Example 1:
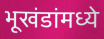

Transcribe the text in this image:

भूखंडांमध्ये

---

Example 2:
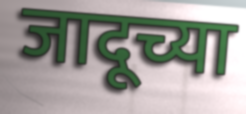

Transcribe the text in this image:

जादूच्या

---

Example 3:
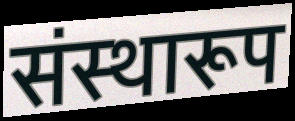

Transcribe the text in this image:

संस्थारूप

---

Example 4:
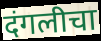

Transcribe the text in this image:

दंगलीचा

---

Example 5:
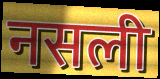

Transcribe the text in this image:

नसली